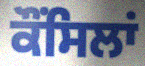
ਕੌਂਸਿਲਾਂ